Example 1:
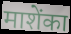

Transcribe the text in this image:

माशेंका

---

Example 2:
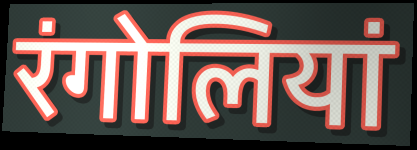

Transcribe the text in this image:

रंगोलियां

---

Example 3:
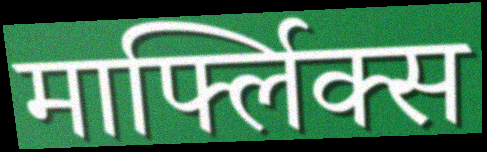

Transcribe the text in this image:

मार्फ्लिक्स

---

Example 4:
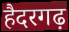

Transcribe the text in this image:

हैदरगढ़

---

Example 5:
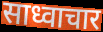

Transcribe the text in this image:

साध्वाचार